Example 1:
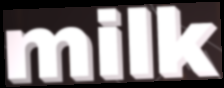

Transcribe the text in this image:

milk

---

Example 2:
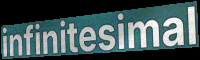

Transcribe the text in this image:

infinitesimal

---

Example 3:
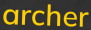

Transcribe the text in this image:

archer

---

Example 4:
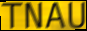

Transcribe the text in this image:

TNAU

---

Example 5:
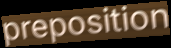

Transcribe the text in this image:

preposition